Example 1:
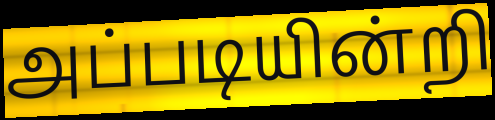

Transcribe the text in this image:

அப்படியின்றி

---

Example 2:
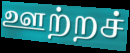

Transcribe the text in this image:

ஊற்றச்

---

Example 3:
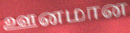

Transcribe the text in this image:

ஊனமான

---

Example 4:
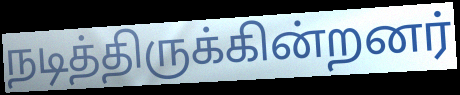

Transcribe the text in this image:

நடித்திருக்கின்றனர்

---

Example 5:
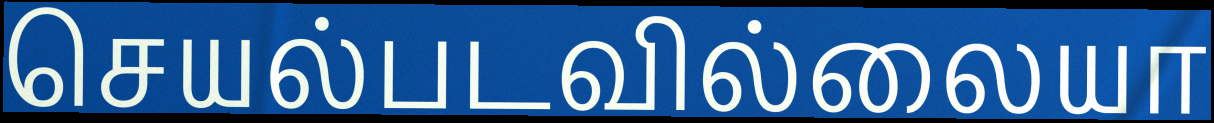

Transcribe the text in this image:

செயல்படவில்லையா